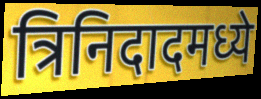
त्रिनिदादमध्ये